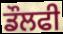
ਡੌਲਫੀ